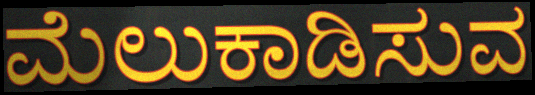
ಮೆಲುಕಾಡಿಸುವ